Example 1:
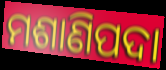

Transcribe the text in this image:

ମଶାଣିପଦା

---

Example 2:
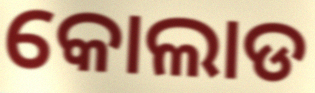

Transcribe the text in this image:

କୋଲାଡ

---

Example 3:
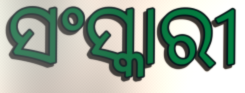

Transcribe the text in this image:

ସଂସ୍କାରୀ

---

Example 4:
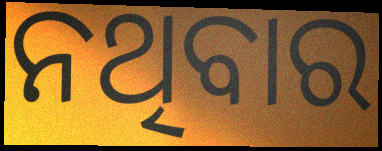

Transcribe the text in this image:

ନଥିବାର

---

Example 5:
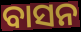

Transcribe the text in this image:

ବାସନ